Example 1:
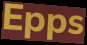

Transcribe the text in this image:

Epps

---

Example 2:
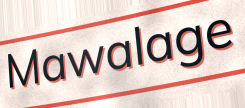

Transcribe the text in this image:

Mawalage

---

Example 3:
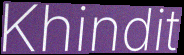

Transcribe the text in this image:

Khindit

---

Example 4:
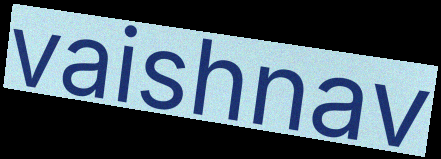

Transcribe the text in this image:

vaishnav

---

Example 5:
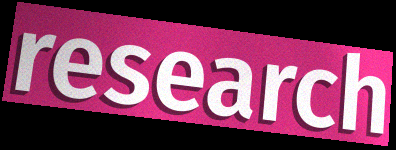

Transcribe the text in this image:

research